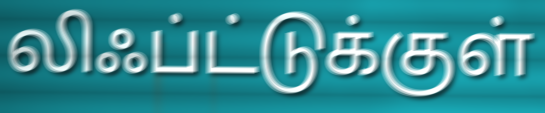
லிஃப்ட்டுக்குள்